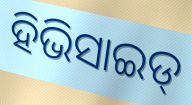
ହିଭିସାଇଡ୍